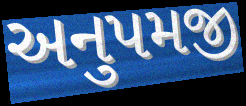
અનુપમજી